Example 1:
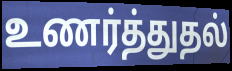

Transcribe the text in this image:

உணர்த்துதல்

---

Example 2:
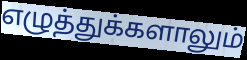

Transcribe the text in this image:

எழுத்துக்களாலும்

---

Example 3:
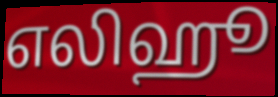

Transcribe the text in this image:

எலிஹூ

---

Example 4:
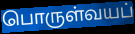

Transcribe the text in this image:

பொருள்வயப்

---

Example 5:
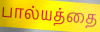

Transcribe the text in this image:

பால்யத்தை